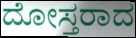
ದೋಸ್ತರಾದ